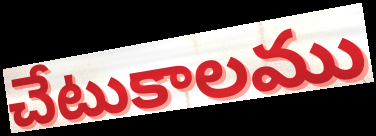
చేటుకాలము